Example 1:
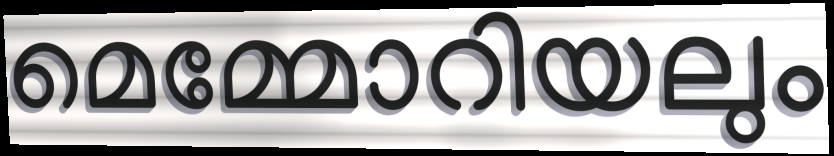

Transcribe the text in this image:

മെമ്മോറിയലും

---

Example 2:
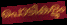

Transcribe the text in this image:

പൊടികളും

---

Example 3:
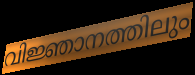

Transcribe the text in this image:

വിജ്ഞാനത്തിലും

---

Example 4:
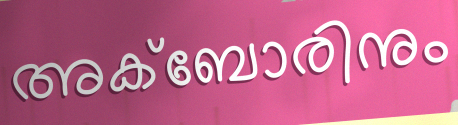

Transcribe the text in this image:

അക്ബോരിനും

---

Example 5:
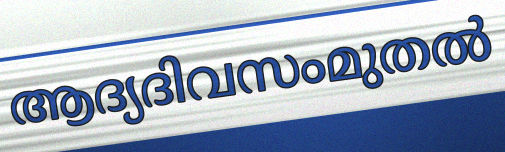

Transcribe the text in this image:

ആദ്യദിവസംമുതൽ